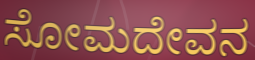
ಸೋಮದೇವನ